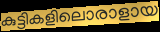
കുട്ടികളിലൊരാളായ